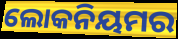
ଲୋକନିୟମର